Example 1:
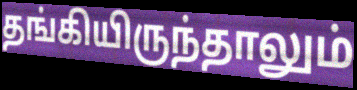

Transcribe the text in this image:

தங்கியிருந்தாலும்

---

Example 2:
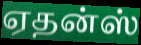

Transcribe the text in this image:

ஏதன்ஸ்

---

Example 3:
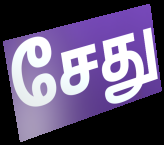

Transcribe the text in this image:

சேது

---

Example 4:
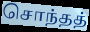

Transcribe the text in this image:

சொந்தத்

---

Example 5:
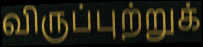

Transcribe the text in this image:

விருப்புற்றுக்